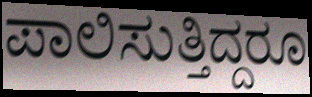
ಪಾಲಿಸುತ್ತಿದ್ದರೂ